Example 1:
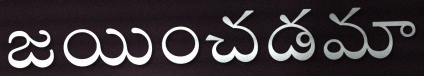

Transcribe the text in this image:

జయించడమా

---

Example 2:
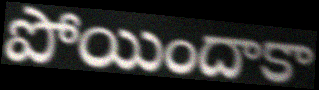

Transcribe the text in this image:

పోయిందాకా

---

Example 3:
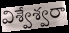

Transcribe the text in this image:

విశ్వేశ్వరా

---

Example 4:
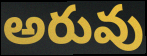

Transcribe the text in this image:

అరువు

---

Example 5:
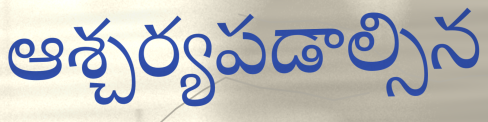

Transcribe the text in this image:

ఆశ్చర్యపడాల్సిన